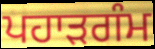
ਪਹਾੜਗੰਮ